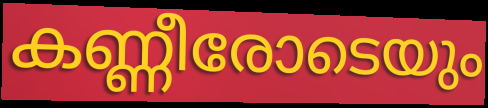
കണ്ണീരോടെയും